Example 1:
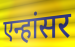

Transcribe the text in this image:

एन्हांसर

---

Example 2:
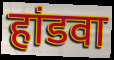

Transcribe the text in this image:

हांडवा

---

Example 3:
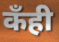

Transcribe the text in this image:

कँही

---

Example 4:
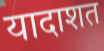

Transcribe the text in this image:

यादाशत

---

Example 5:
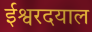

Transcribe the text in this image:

ईश्वरदयाल